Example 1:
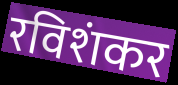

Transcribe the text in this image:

रविशंकर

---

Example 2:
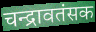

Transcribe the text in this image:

चन्द्रावतंसक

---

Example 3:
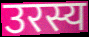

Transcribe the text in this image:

उरस्य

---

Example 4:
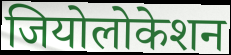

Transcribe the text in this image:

जियोलोकेशन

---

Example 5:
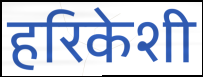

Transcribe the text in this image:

हरिकेशी